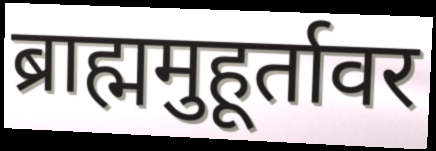
ब्राह्ममुहूर्तावर